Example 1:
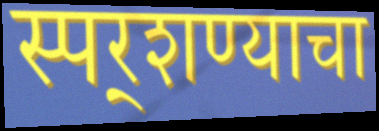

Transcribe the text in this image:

स्पर्शण्याचा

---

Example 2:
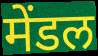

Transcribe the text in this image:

मेंडल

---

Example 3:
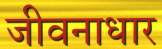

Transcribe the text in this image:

जीवनाधार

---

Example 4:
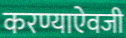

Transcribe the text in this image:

करण्याऐवजी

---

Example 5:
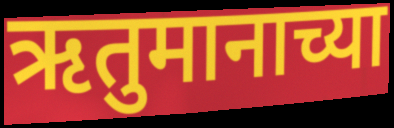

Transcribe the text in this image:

ऋतुमानाच्या